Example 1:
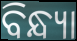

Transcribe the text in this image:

ବିନ୍ଧ୍ୟା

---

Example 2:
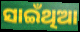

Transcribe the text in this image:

ସାଇଁଥିଆ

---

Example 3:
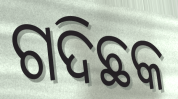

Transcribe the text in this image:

ଗଦିଛକ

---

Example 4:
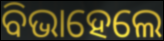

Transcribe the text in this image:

ବିଭାହେଲେ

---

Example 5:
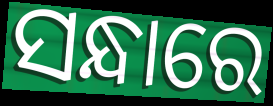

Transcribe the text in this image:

ସନ୍ଧାରେ